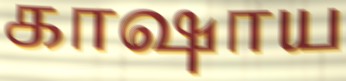
காஷாய